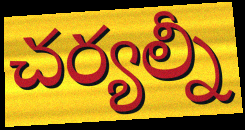
చర్యల్నీ